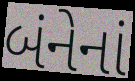
બંનેનાં